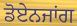
ਡੋਏਨਜਾਂਗ